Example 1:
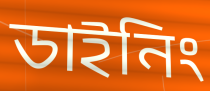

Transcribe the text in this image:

ডাইনিং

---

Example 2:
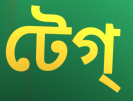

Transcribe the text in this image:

টেগ্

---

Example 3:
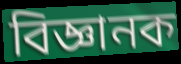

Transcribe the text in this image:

বিজ্ঞানক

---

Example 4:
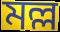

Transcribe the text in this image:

মল্ল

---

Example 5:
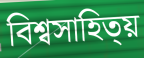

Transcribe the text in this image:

বিশ্বসাহিত্য়